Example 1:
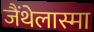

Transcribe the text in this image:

जैंथेलास्मा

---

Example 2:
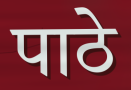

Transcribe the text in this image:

पाठे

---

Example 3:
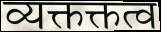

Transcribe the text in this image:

व्यक्तक्तत्व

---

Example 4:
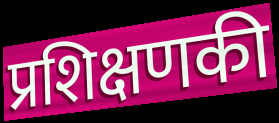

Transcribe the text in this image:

प्रशिक्षणकी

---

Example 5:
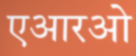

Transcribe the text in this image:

एआरओ